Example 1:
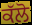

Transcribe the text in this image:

ਕੱਲੋ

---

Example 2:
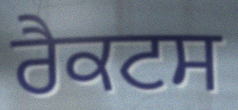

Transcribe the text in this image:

ਰੈਕਟਸ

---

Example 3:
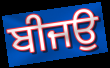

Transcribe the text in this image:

ਬੀਜਉ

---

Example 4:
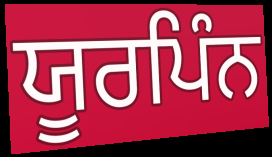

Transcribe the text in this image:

ਯੂਰਪਿੰਨ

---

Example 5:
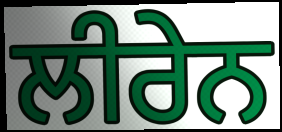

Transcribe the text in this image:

ਲੀਰੇਨ